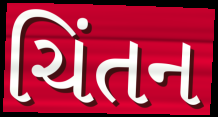
ચિંતન